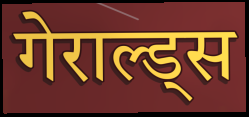
गेराल्ड्स